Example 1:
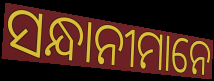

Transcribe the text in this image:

ସନ୍ଧାନୀମାନେ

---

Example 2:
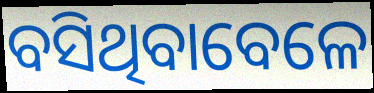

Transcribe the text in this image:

ବସିଥିବାବେଳେ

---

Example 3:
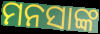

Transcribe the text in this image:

ମନସାଙ୍କ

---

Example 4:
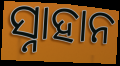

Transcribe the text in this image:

ସ୍ନାହାନ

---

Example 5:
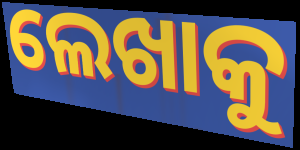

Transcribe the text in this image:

ଲେଖାକୁ